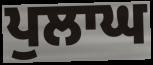
ਪੁਲਾਘ